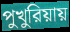
পুখুরিয়ায়